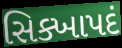
સિક્ખાપદં